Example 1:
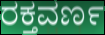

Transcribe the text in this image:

ರಕ್ತವರ್ಣ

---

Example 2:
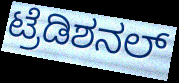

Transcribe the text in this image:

ಟ್ರೆಡಿಶನಲ್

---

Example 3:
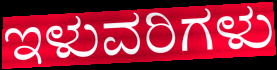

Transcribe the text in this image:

ಇಳುವರಿಗಳು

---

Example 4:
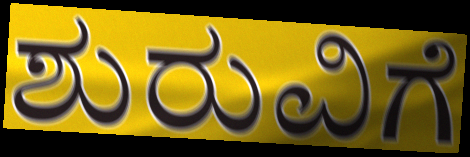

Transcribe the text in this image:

ಶುರುವಿಗೆ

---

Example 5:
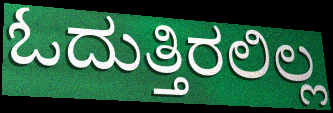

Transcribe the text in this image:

ಓದುತ್ತಿರಲಿಲ್ಲ